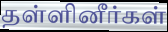
தள்ளினீர்கள்